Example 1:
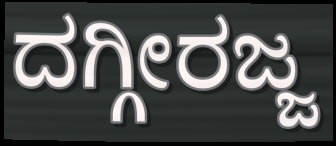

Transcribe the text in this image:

ದಗ್ಗೀರಜ್ಜ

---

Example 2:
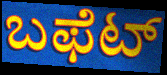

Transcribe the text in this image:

ಬಫೆಟ್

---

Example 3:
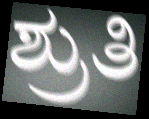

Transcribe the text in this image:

ಶ್ರುತಿ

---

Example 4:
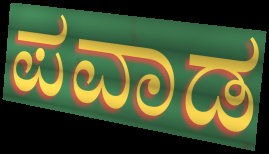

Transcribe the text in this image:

ಪವಾಡ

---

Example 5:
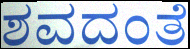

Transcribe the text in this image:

ಶವದಂತೆ